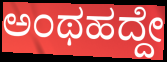
ಅಂಥಹದ್ದೇ